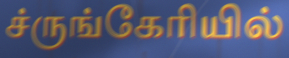
ச்ருங்கேரியில்